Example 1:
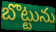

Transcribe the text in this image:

బొట్టును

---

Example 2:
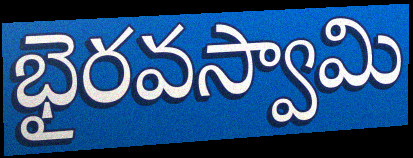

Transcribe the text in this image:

భైరవస్వామి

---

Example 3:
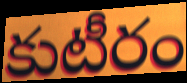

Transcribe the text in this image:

కుటీరం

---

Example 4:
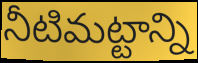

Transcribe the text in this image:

నీటిమట్టాన్ని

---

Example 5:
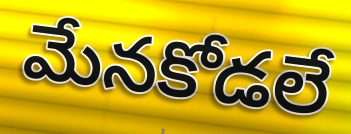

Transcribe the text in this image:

మేనకోడలే